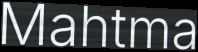
Mahtma